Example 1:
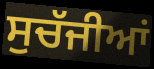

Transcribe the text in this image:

ਸੁਚੱਜੀਆਂ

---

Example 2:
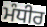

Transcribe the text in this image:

ਮੰਧੀਰ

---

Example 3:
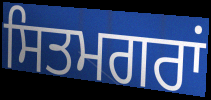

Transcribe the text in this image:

ਸਿਤਮਗਰਾਂ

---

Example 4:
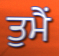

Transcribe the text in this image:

ਤੁਮੈਂ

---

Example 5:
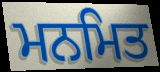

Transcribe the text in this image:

ਮਨਮਿਤ